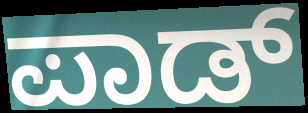
ಪಾಡ್